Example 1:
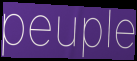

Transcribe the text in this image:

peuple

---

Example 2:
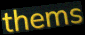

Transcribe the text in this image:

thems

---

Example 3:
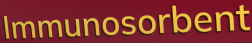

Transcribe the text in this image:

Immunosorbent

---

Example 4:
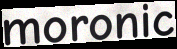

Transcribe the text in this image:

moronic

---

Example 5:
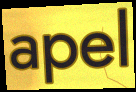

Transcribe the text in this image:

apel